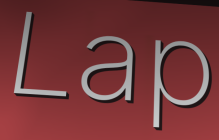
Lap